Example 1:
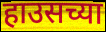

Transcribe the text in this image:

हाउसच्या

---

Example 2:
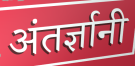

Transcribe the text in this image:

अंतर्ज्ञानी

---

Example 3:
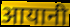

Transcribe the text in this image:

आयानी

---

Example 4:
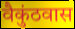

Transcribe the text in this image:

वैकुंठवास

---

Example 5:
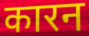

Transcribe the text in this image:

कारन